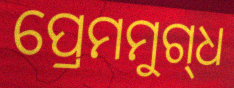
ପ୍ରେମମୁଗ୍‌ଧ